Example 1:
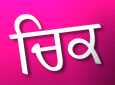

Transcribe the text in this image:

ਚਿਕ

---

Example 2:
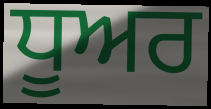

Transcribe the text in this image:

ਧੂਅਰ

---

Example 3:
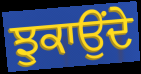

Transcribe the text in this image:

ਝੁਕਾਉਂਦੇ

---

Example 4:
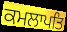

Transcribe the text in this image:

ਕਮਲਾਪਤਿ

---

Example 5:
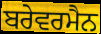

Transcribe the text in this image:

ਬਰੇਵਰਮੈਨ